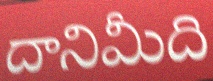
దానిమీది